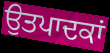
ਉਤਪਾਦਕਾਂ